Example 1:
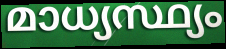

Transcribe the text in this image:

മാധ്യസ്ഥ്യം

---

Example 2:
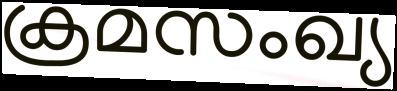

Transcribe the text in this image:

ക്രമസംഖ്യ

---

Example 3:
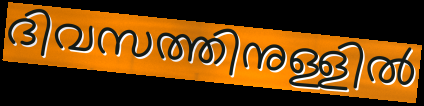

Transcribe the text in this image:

ദിവസത്തിനുള്ളിൽ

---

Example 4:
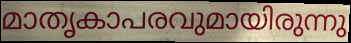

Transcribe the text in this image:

മാതൃകാപരവുമായിരുന്നു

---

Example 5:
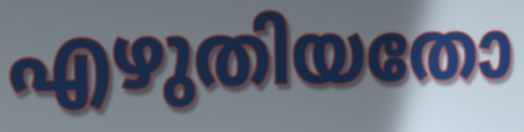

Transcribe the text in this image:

എഴുതിയതോ